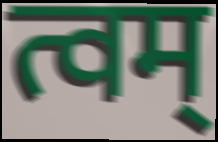
त्वम्